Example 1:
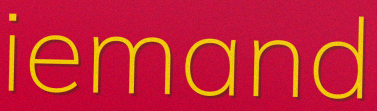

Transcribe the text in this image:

iemand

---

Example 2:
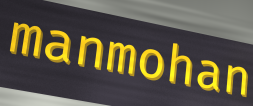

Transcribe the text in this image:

manmohan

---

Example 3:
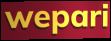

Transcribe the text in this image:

wepari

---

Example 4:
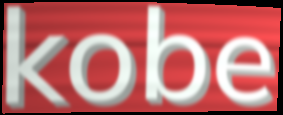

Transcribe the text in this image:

kobe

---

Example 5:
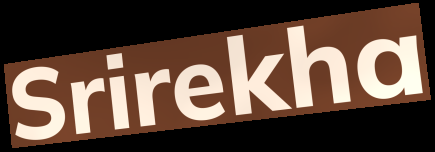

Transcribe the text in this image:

Srirekha